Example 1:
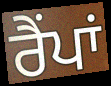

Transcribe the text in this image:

ਰੈਂਪਾਂ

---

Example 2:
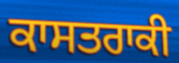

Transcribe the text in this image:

ਕਾਸਤਰਾਕੀ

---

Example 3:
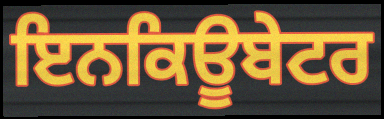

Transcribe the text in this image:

ਇਨਕਿਊਬੇਟਰ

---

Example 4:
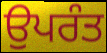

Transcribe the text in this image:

ਉਪਰੰਤ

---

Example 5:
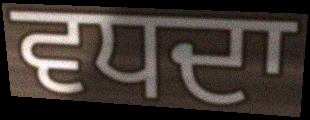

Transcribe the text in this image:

ਵਧਦਾ